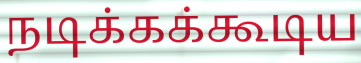
நடிக்கக்கூடிய